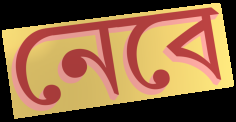
নেবে